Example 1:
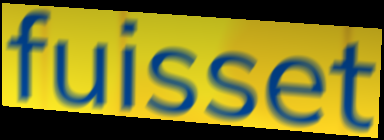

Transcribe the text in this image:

fuisset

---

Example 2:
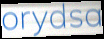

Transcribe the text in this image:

orydsa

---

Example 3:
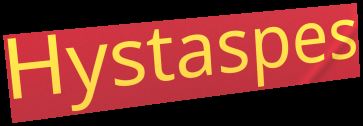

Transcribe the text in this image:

Hystaspes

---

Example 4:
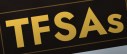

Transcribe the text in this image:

TFSAs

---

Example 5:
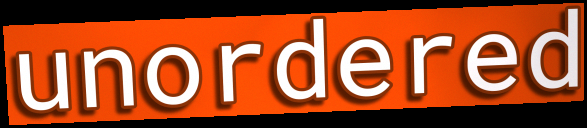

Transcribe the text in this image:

unordered